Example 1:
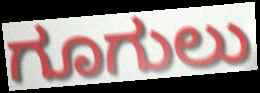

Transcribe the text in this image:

ಗೂಗುಲು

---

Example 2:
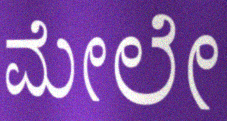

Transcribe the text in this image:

ಮೇಲೇ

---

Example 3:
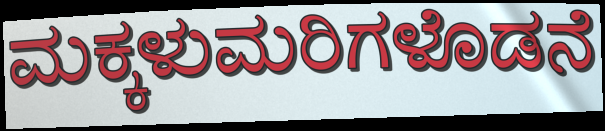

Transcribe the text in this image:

ಮಕ್ಕಳುಮರಿಗಳೊಡನೆ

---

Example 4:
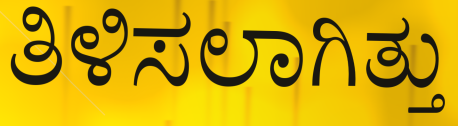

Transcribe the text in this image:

ತಿಳಿಸಲಾಗಿತ್ತು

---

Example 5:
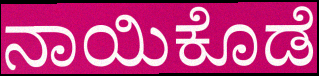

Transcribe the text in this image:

ನಾಯಿಕೊಡೆ